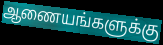
ஆணையங்களுக்கு